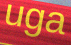
uga